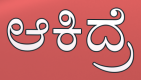
ಆಕಿದ್ರೆ